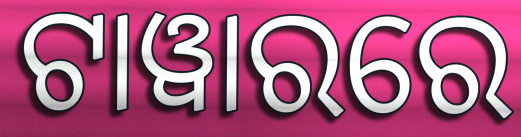
ଟାୱାରରେ